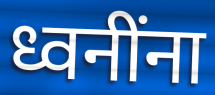
ध्वनींना